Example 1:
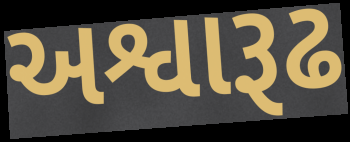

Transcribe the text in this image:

અશ્વારૂઢ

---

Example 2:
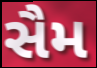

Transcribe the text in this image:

સૈમ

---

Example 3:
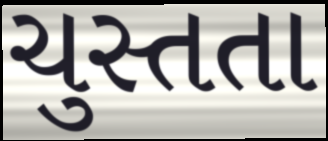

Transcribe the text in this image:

ચુસ્તતા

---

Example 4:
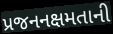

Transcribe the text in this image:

પ્રજનનક્ષમતાની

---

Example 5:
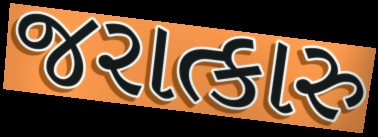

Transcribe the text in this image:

જરાત્કારુ